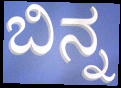
ಬಿನ್ನ